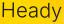
Heady